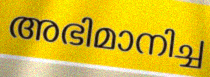
അഭിമാനിച്ച